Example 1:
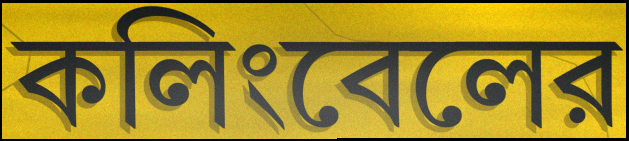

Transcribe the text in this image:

কলিংবেলের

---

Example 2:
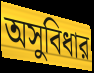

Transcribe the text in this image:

অসুবিধার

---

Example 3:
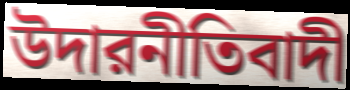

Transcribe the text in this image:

উদারনীতিবাদী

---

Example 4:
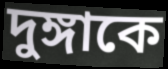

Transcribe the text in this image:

দুঙ্গাকে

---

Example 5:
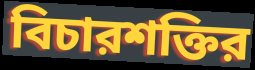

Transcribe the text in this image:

বিচারশক্তির